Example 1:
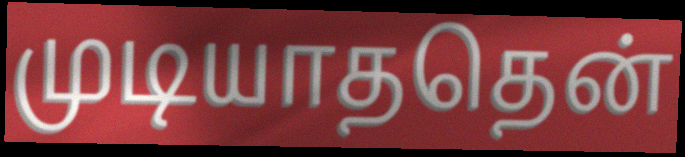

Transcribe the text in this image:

முடியாததென்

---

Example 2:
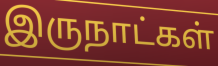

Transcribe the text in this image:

இருநாட்கள்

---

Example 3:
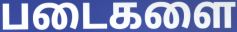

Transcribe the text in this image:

படைகளை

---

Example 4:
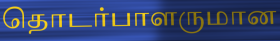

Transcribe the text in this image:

தொடர்பாளருமான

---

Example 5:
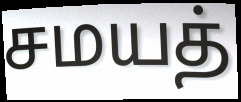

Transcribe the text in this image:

சமயத்